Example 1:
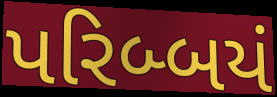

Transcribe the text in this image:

પરિબ્બયં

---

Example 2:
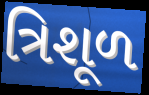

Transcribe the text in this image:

ત્રિશૂળ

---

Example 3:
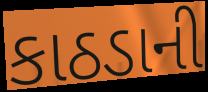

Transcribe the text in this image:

કાઠડાની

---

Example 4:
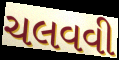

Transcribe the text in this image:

ચલવવી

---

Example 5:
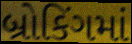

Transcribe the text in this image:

બ્રોકિંગમાં